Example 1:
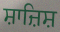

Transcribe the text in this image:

ਸ਼ਾਜ਼ਿਸ਼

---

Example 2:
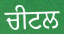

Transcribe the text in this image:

ਚੀਟਲ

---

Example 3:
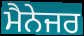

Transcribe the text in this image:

ਮੈਨੇਜਰ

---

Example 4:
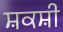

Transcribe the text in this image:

ਸ਼ਕਸ਼ੀ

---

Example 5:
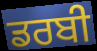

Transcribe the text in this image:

ਡਰਬੀ